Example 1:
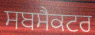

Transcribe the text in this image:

ਸਬਸੈਕਟਰ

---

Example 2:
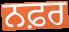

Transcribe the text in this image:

ਨਫ਼ਰ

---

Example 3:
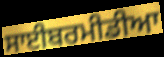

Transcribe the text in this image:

ਸਾਈਬਰਮੀਡੀਆ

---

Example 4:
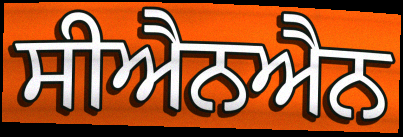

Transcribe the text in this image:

ਸੀਐਨਐਨ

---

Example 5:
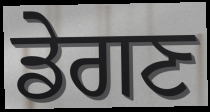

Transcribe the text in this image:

ਡੇਗਣ